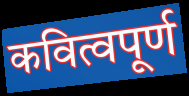
कवित्वपूर्ण